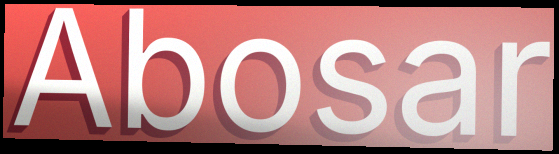
Abosar